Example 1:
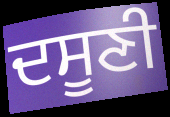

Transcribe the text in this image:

ਦਸੂਣੀ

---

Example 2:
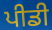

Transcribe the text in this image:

ਪੀਡੀ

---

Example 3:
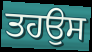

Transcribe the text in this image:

ਤਹਉਸ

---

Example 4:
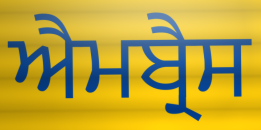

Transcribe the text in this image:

ਐਮਬ੍ਰੈਸ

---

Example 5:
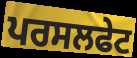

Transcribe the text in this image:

ਪਰਸਲਫੇਟ